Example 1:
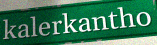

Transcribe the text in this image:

kalerkantho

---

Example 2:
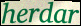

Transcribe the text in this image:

herdar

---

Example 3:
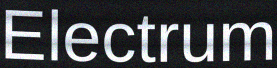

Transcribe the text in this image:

Electrum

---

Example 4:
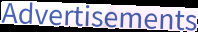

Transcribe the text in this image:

Advertisements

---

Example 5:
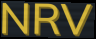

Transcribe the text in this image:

NRV